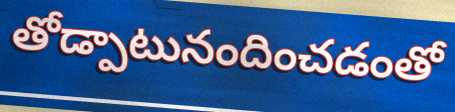
తోడ్పాటునందించడంతో